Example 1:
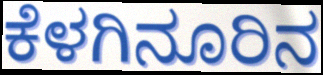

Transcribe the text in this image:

ಕೆಳಗಿನೂರಿನ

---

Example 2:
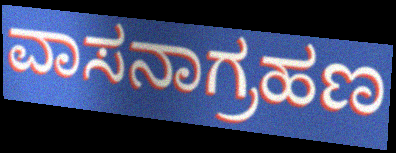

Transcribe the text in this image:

ವಾಸನಾಗ್ರಹಣ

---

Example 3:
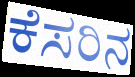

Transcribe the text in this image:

ಕೆಸರಿನ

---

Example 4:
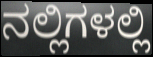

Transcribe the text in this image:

ನಲ್ಲಿಗಳಲ್ಲಿ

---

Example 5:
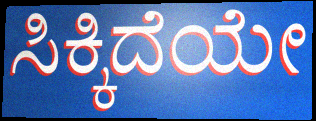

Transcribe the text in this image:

ಸಿಕ್ಕಿದೆಯೇ